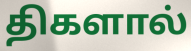
திகளால்